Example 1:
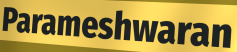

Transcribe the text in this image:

Parameshwaran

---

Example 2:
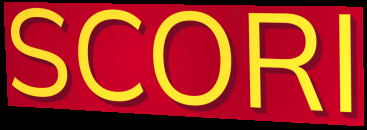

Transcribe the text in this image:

SCORI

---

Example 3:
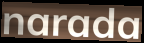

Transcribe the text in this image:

narada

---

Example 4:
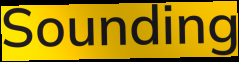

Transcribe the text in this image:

Sounding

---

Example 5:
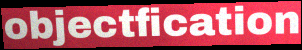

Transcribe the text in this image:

objectfication